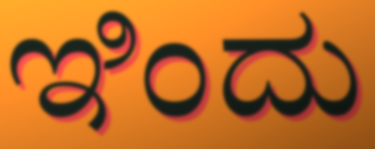
ಇಿಂದು